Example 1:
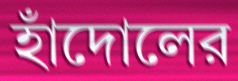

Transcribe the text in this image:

হাঁদোলের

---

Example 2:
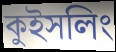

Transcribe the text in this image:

কুইসলিং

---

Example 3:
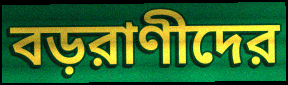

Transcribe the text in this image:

বড়রাণীদের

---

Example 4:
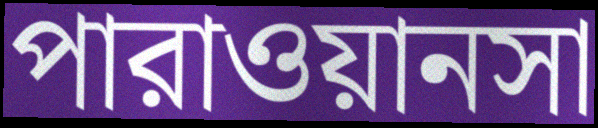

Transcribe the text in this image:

পারাওয়ানসা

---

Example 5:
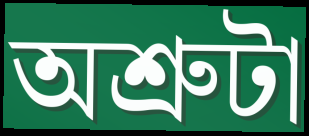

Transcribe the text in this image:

অশ্রুটা